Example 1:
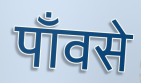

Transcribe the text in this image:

पाँवसे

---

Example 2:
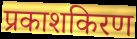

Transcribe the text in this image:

प्रकाशकिरण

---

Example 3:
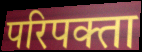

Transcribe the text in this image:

परिपक्ता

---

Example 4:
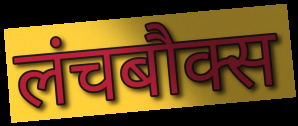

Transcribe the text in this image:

लंचबौक्स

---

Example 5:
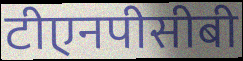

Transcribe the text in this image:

टीएनपीसीबी